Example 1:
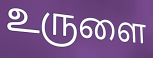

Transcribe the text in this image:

உருளை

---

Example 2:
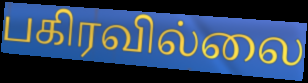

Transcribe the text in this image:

பகிரவில்லை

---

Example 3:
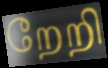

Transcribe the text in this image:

றேறி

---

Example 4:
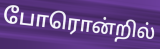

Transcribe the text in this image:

போரொன்றில்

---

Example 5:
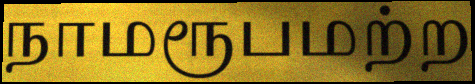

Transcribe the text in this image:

நாமரூபமற்ற